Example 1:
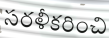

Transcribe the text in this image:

సరళీకరించి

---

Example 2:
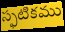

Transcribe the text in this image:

స్ఫటికము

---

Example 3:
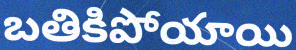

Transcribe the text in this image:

బతికిపోయాయి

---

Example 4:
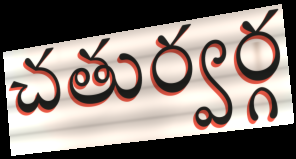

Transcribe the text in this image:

చతుర్వర్గ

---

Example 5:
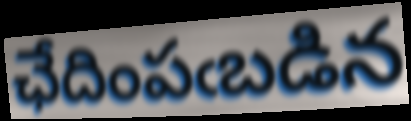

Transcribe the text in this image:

ఛేదింపఁబడిన